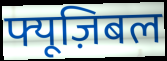
फ्यूज़िबल